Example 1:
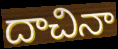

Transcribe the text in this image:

దాచినా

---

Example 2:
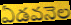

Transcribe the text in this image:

ఏడవనెల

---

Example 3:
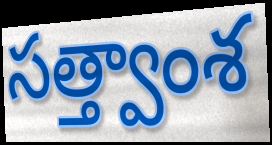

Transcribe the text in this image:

సత్త్వాంశ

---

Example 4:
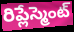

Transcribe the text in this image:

రిప్లేస్మెంట్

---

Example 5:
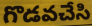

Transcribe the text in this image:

గొడవచేసి